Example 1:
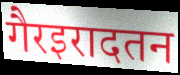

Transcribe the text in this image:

गैरइरादतन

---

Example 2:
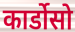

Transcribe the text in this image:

कार्डोसो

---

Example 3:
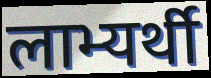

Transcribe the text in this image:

लाभ्यर्थी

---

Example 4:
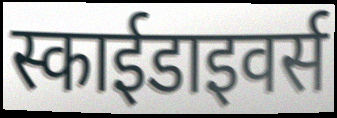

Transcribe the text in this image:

स्काईडाइवर्स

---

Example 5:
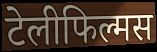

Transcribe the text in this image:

टेलीफिल्मस